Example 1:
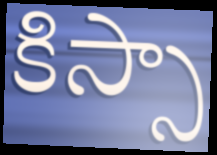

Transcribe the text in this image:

కిస్సా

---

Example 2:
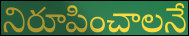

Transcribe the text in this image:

నిరూపించాలనే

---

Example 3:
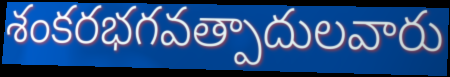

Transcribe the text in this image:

శంకరభగవత్పాదులవారు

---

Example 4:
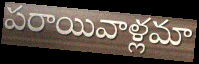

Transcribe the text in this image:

పరాయివాళ్లమా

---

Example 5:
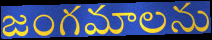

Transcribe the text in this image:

జంగమాలను